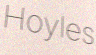
Hoyles